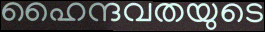
ഹൈന്ദവതയുടെ